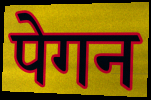
पेगन